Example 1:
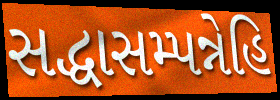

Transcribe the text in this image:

સદ્ધાસમ્પન્નેહિ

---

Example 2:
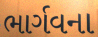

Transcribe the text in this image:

ભાર્ગવના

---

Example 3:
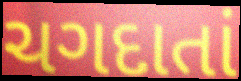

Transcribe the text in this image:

ચગદાતાં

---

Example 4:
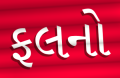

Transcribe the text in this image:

ફલનો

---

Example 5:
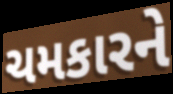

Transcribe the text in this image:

ચમકારને